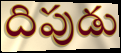
దిపుడు